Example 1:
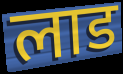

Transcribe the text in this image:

लाड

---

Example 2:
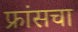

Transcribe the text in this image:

फ्रांसचा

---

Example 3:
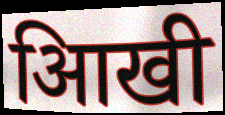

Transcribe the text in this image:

आिखी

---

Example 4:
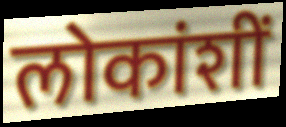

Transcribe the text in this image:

लोकांशीं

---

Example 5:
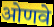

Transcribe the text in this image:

ओणवे